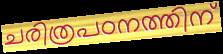
ചരിത്രപഠനത്തിന്